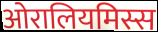
ओरालियमिस्स